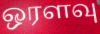
ஒரளவு